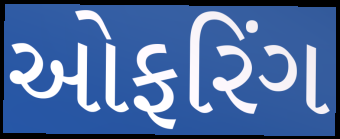
ઓફરિંગ